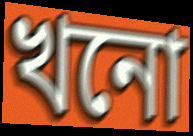
খনো